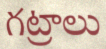
గట్రాలు